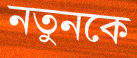
নতুনকে